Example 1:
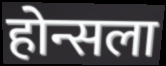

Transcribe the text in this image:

होन्सला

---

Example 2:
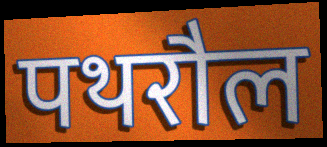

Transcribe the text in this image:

पथरौल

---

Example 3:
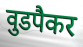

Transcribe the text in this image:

वुडपैकर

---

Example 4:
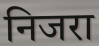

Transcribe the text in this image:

निजरा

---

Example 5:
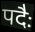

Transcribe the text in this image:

पदैः